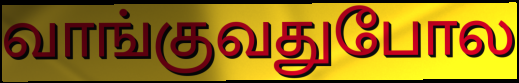
வாங்குவதுபோல